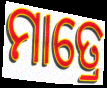
ମାତ୍ରେ